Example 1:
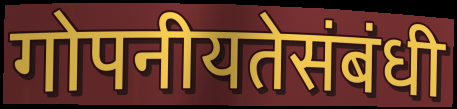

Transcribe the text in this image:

गोपनीयतेसंबंधी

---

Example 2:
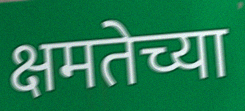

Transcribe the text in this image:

क्षमतेच्या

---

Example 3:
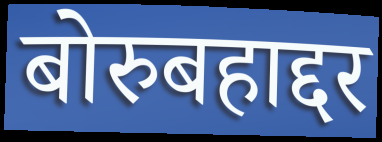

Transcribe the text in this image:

बोरुबहाद्दर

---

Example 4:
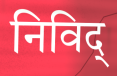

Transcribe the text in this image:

निविद्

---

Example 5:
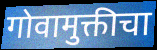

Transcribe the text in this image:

गोवामुक्तीचा